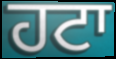
ਹਟਾ